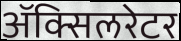
ॲक्सिलरेटर